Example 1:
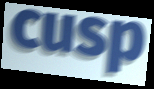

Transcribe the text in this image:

cusp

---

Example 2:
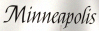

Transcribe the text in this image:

Minneapolis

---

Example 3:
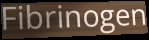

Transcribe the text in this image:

Fibrinogen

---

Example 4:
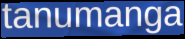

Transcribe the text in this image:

tanumanga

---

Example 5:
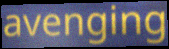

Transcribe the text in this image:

avenging